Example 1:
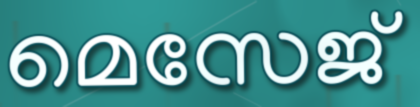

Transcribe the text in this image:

മെസേജ്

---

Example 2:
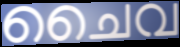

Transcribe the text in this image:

ചൈവ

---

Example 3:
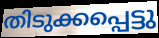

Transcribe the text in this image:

തിടുക്കപ്പെട്ടു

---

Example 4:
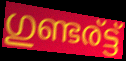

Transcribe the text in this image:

ഗുണ്ടര്ട്ട്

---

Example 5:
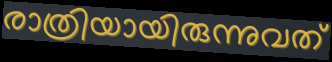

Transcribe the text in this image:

രാത്രിയായിരുന്നുവത്